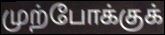
முற்போக்குக்